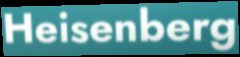
Heisenberg